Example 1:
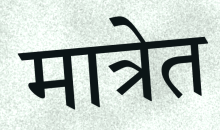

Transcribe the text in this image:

मात्रेत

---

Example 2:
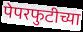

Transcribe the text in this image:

पेपरफुटीच्या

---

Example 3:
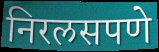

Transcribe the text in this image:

निरलसपणे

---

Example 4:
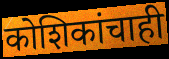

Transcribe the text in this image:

कोशिकांचाही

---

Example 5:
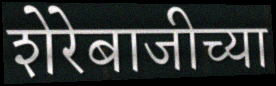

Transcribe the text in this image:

शेरेबाजीच्या